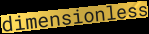
dimensionless